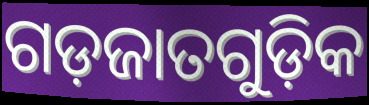
ଗଡ଼ଜାତଗୁଡ଼ିକ